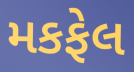
મકફેલ